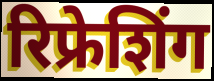
रिफ्रेशिंग